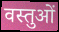
वस्तुओं